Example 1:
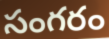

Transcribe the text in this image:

సంగరం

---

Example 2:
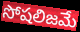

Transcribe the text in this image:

సోషలిజమే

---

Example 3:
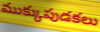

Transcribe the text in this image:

ముక్కుపుడకలు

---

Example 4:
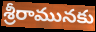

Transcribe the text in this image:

శ్రీరామునకు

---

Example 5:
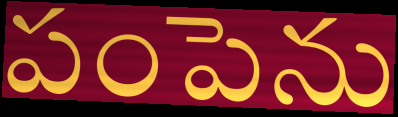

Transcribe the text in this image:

పంపెను